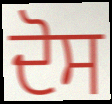
ਦੋਸ